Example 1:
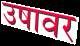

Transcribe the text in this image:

उषावर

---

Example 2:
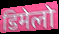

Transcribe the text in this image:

डिमेलो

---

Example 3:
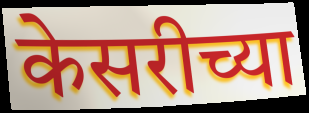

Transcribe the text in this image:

केसरीच्या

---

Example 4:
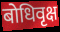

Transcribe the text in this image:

बोधिवृक्ष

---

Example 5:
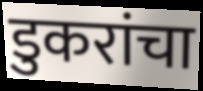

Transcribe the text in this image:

डुकरांचा